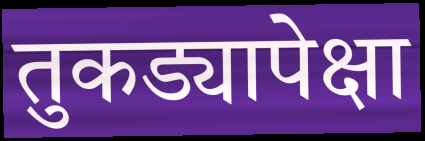
तुकड्यापेक्षा